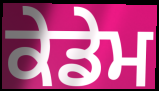
ਕੇਡੇਮ